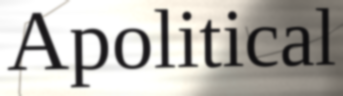
Apolitical